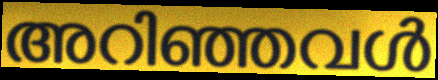
അറിഞ്ഞവൾ